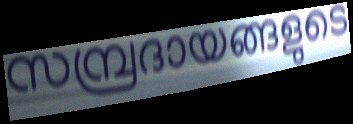
സമ്പ്രദായങ്ങളുടെ